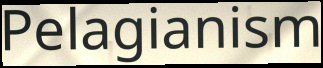
Pelagianism